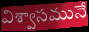
విశ్వాసమునే